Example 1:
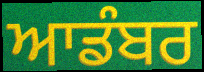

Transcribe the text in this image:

ਆਡੰਬਰ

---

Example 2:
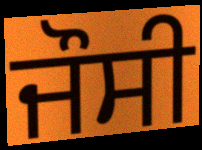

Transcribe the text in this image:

ਜੌਸੀ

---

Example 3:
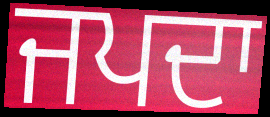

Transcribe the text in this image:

ਜਪਦਾ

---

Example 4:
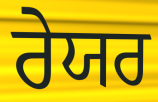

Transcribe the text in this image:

ਰੇਯਰ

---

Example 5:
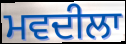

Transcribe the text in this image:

ਮਵਦੀਲਾ